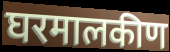
घरमालकीण